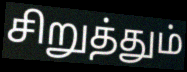
சிறுத்தும்